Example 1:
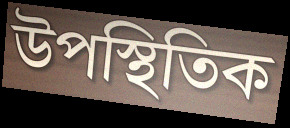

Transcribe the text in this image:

উপস্থিতিক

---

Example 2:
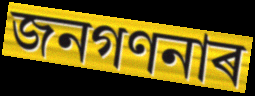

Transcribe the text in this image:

জনগণনাৰ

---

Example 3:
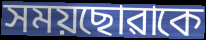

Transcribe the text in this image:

সময়ছোৱাকে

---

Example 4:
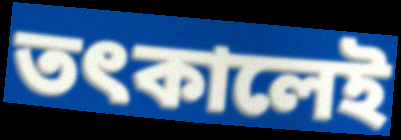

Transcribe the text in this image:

তৎকালেই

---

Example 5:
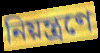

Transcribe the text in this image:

নিয়ন্ত্ৰণে